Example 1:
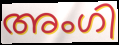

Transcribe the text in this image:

അംഗി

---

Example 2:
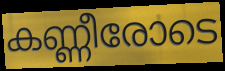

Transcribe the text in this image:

കണ്ണീരോടെ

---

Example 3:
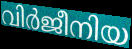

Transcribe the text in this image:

വിർജീനിയ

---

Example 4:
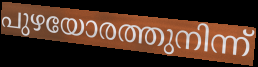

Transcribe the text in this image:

പുഴയോരത്തുനിന്ന്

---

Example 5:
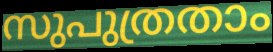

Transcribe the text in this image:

സുപുത്രതാം